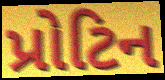
પ્રોટિન